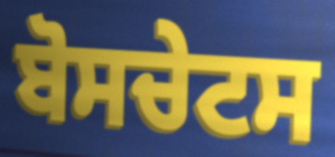
ਬੋਸਚੇਟਸ